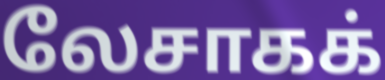
லேசாகக்